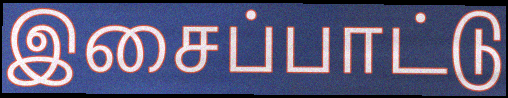
இசைப்பாட்டு